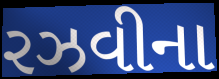
રઝવીના